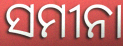
ସମୀନା